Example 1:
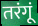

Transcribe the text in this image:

तरंगूं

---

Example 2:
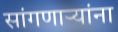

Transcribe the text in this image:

सांगणार्‍यांना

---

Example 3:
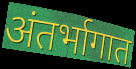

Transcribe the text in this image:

अंतर्भागात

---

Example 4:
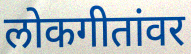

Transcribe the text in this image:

लोकगीतांवर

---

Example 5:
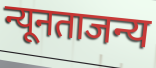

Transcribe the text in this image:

न्यूनताजन्य